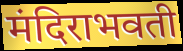
मंदिराभवती